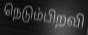
நெடும்பிறவி